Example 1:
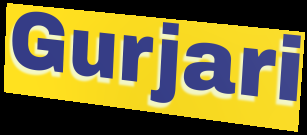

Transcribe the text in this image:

Gurjari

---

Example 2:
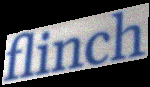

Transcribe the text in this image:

flinch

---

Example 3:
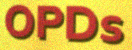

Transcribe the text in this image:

OPDs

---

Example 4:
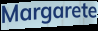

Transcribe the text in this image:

Margarete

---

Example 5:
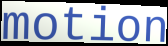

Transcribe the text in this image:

motion